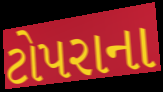
ટોપરાના